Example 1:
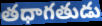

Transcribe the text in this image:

తధాగతుడు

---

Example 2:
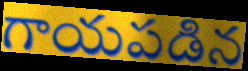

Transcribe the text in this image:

గాయపడిన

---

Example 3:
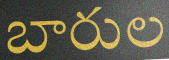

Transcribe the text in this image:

బారుల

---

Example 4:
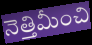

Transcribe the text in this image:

నెత్తిమీంచి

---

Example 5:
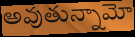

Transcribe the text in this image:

అవుతున్నామో